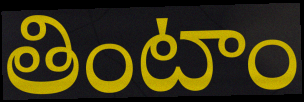
తింటాం